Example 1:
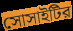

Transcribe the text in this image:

সোসাইটির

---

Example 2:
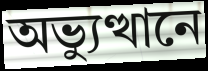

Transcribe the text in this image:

অভ্যুত্থানে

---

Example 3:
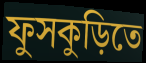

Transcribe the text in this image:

ফুসকুড়িতে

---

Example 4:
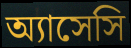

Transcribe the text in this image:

অ্যাসেসি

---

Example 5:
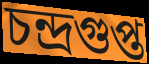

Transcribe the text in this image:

চন্দ্রগুপ্ত